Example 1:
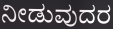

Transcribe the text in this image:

ನೀಡುವುದರ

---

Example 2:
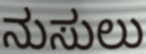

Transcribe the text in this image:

ನುಸುಲು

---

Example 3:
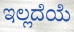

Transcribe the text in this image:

ಇಲ್ಲದೆಯೆ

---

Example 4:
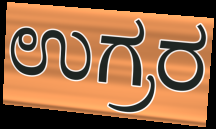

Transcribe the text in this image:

ಉಗ್ರರ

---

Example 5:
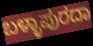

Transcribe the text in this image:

ಬಳ್ಳಾಪುರದಾ